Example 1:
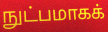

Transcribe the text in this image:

நுட்பமாகக்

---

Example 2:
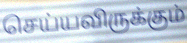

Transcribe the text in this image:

செய்யவிருக்கும்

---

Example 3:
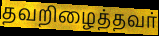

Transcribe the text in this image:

தவறிழைத்தவர்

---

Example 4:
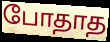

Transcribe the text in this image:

போதாத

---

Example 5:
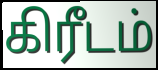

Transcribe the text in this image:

கிரீடம்